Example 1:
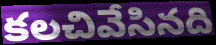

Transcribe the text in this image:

కలచివేసినది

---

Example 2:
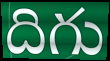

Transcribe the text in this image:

దిగు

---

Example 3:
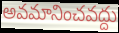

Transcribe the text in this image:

అవమానించవద్దు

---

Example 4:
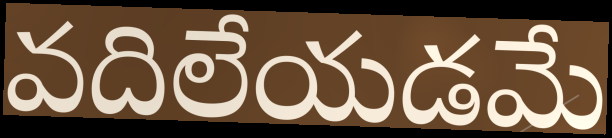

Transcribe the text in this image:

వదిలేయడమే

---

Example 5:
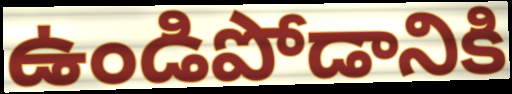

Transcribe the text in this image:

ఉండిపోడానికి